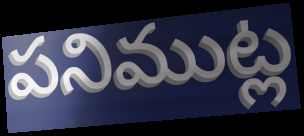
పనిముట్ల